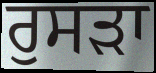
ਰੁਸੜਾ